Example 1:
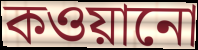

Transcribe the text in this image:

কওয়ানো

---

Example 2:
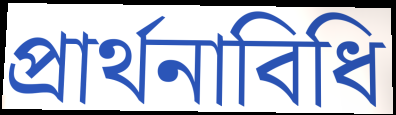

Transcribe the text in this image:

প্রার্থনাবিধি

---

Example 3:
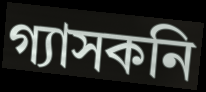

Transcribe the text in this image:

গ্যাসকনি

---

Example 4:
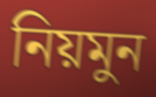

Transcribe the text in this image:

নিয়মুন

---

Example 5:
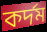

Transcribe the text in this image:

কর্দম